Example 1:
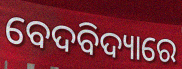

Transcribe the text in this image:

ବେଦବିଦ୍ୟାରେ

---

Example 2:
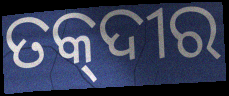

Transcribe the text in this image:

ତକ୍‌ଦୀର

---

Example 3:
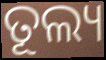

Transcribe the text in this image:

ତୂଲ୍ୟ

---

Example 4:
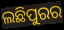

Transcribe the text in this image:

ଲଛିପୁରର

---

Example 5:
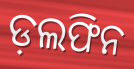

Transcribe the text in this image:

ଡ଼ଲଫିନ